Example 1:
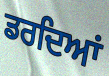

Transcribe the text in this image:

ਡਰਦਿਆਂ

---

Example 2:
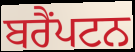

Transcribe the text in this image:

ਬਰੈੰਪਟਨ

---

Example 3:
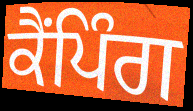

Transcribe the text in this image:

ਕੈਂਪਿੰਗ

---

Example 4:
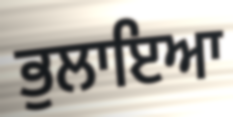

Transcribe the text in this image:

ਭੁਲਾਇਆ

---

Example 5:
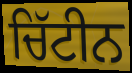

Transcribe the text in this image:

ਚਿੱਟੀਨ